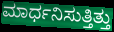
ಮಾರ್ಧನಿಸುತ್ತಿತ್ತು